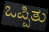
ಒಪ್ಪಿತು